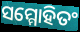
ସମ୍ମୋହିତଂ